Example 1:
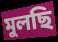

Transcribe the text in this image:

মুলছি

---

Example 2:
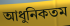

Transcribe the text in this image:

আধুনিকতম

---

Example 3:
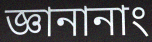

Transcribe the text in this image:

জ্ঞানানাং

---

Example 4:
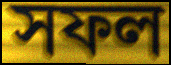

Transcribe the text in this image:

সফল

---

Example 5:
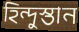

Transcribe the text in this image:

হিন্দুস্তান